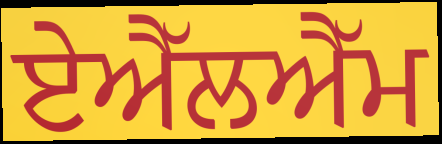
ਏਐੱਲਐੱਮ